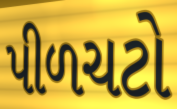
પીળચટો